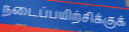
நடைப்பயிற்சிக்குக்